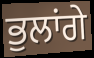
ਭੁਲਾਂਗੇ